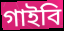
গাইবি